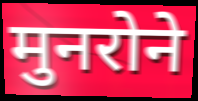
मुनरोने